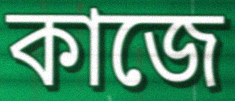
কাজে